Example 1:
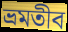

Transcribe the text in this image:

ভ্রমতীব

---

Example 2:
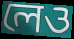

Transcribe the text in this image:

লেও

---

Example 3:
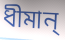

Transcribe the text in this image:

ধীমান্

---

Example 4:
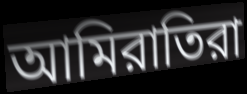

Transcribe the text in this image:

আমিরাতিরা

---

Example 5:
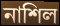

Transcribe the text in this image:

নাশিল